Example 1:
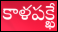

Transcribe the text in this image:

కాళపక్ఖే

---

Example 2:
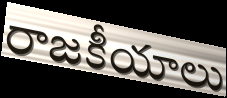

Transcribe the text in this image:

రాజకీయాలు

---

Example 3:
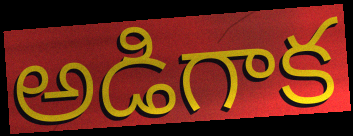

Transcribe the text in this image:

అడిగాక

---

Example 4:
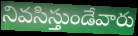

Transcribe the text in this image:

నివసిస్తుండేవారు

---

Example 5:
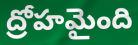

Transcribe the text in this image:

ద్రోహమైంది